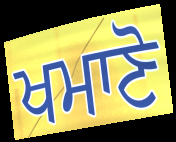
ਖਮਾਣੋ